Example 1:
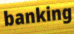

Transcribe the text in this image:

banking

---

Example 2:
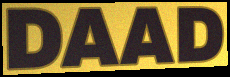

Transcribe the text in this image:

DAAD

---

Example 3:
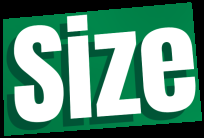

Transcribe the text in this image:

Size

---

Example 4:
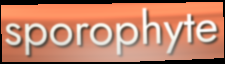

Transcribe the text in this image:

sporophyte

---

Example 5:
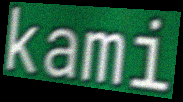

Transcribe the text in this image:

kami